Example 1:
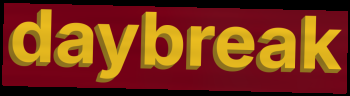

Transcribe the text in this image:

daybreak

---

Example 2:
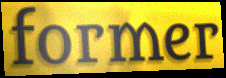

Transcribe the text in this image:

former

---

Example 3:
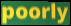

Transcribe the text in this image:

poorly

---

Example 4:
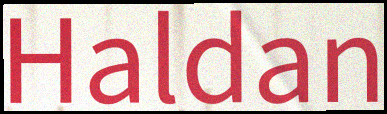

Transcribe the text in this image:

Haldan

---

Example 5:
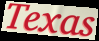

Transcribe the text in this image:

Texas